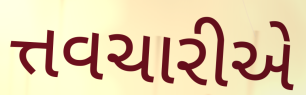
ત્તવચારીએ